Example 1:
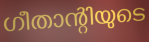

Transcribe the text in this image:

ഗീതാന്റിയുടെ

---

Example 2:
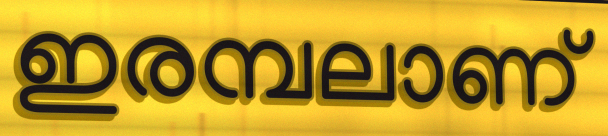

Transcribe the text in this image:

ഇരമ്പലാണ്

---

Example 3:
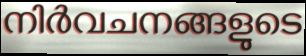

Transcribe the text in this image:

നിർവചനങ്ങളുടെ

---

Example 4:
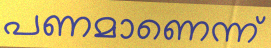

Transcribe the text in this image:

പണമാണെന്ന്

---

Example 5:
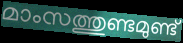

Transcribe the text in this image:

മാംസത്തുണ്ടമുണ്ട്